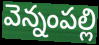
వెన్నంపల్లి